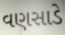
વણસાડે